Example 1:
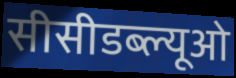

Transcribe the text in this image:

सीसीडब्ल्यूओ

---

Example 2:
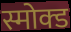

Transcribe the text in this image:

स्मोक्ड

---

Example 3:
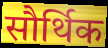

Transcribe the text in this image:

सौर्थिक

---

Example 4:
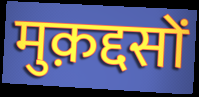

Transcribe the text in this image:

मुक़द्दसों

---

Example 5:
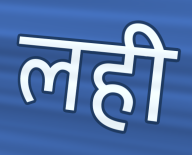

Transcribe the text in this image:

लही